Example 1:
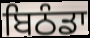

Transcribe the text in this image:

ਬਿਠੰਡਾ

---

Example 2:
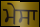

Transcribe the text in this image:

ਮੇਸਾ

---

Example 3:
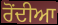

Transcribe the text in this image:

ਰੋਂਦੀਆ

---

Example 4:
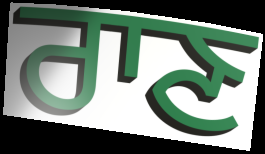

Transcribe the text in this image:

ਰਾਣ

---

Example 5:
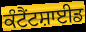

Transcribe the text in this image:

ਕੰਟੈਂਟਸ਼ਾਈਡ